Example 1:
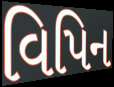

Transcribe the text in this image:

વિપિન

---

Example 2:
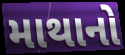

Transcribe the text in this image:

માથાનો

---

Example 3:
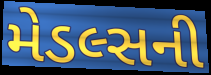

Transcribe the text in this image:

મેડલ્સની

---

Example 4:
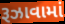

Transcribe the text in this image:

રૂઝાવામાં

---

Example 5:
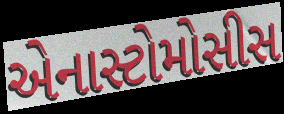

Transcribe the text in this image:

એનાસ્ટોમોસીસ